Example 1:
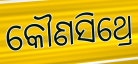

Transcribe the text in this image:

କୌଣସିଥ୍ରେ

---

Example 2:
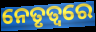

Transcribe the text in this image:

ନେତୃତ୍ଵରେ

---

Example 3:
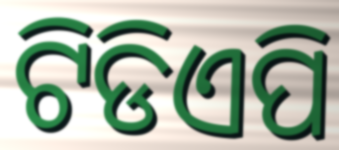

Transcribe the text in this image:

ଟିଡିଏପି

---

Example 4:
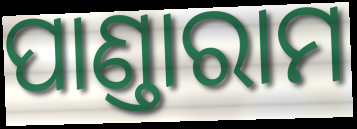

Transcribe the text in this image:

ପାଣ୍ଡାରାମ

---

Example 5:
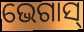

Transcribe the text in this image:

ଭେଗାସ୍